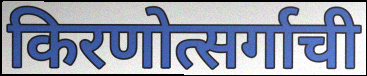
किरणोत्सर्गाची